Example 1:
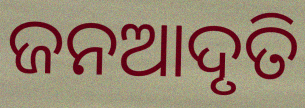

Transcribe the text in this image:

ଜନଆଦୃତି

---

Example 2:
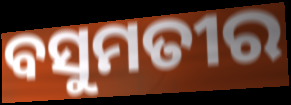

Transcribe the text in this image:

ବସୁମତୀର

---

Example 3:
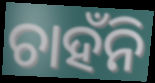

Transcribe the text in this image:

ଚାହଁନି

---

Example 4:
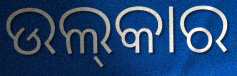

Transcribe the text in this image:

ଉଲ୍‌କାର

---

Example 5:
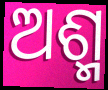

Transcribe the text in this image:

ଅଶ୍ମ